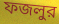
ফজলুর